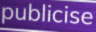
publicise